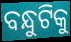
ବନ୍ଧୁଟିକୁ